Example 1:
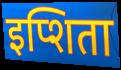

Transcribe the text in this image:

इप्शिता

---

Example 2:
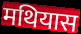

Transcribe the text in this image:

मथियास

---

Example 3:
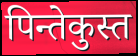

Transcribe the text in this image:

पिन्तेकुस्त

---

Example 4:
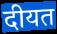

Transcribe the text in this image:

दीयत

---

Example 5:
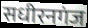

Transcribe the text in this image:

सधीरनगंज